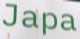
Japa